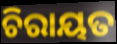
ଚିରାୟତ